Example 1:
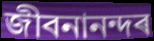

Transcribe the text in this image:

জীবনানন্দৰ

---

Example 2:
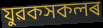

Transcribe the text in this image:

যুৱকসকলৰ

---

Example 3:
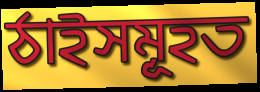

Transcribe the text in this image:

ঠাইসমূহত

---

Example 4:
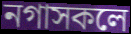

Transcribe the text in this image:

নগাসকলে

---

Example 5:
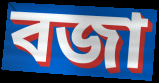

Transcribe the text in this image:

বজা